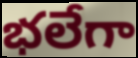
భలేగా